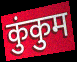
कुंकुम